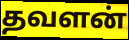
தவளன்